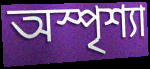
অস্পৃশ্যা